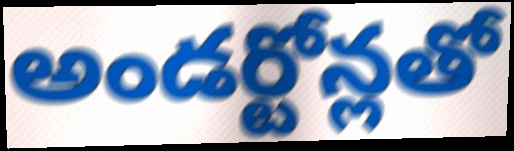
అండర్టోన్లతో